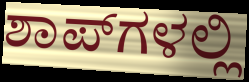
ಶಾಪ್‌ಗಳಲ್ಲಿ